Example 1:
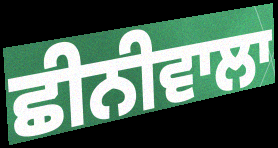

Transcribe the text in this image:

ਛੀਨੀਵਾਲਾ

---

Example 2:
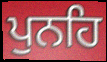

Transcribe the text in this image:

ਪੁਨਹਿ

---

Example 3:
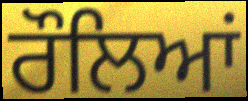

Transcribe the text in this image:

ਰੌਲਿਆਂ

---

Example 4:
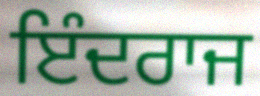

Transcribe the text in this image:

ਇੰਦਰਾਜ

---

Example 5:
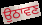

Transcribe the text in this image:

ਉਠਾਵਣ